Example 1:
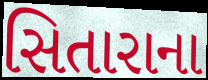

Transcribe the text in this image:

સિતારાના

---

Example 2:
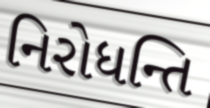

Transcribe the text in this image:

નિરોધન્તિ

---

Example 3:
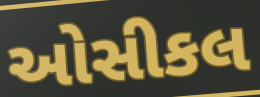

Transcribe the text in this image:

ઓસીકલ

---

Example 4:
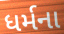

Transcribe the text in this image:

ધર્મના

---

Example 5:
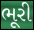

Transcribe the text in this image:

ભૂરી